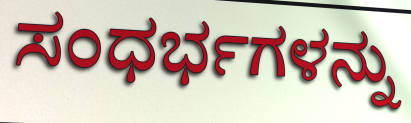
ಸಂಧರ್ಭಗಳನ್ನು